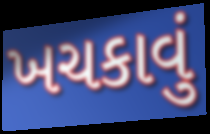
ખચકાવું